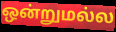
ஒன்றுமல்ல